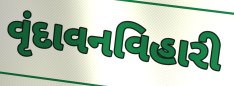
વૃંદાવનવિહારી